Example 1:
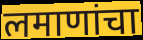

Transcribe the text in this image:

लमाणांचा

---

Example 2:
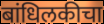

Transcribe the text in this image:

बांधिलकीचा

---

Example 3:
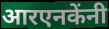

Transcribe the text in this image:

आरएनकेंनी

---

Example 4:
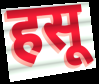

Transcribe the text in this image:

हसू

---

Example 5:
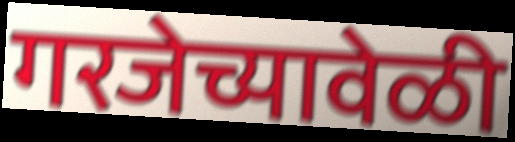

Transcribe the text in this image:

गरजेच्यावेळी